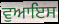
ਵੁਆਇਸ